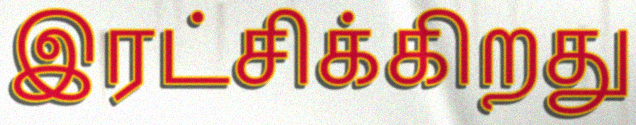
இரட்சிக்கிறது